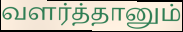
வளர்த்தானும்